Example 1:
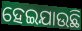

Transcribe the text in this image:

ହେଇଯାଉଛି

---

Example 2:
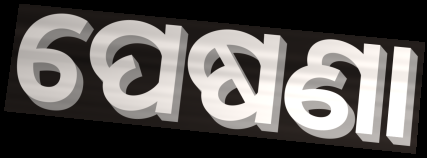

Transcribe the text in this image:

ପେଷଣା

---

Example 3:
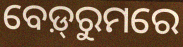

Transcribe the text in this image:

ବେଡ଼୍‌ରୁମରେ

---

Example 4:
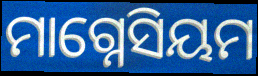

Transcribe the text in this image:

ମାଗ୍ନେସିୟମ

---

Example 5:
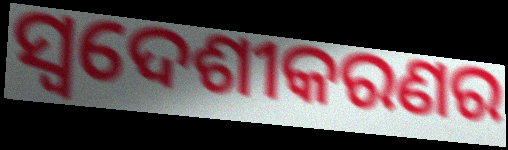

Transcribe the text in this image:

ସ୍ୱଦେଶୀକରଣର